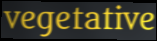
vegetative